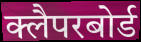
क्लैपरबोर्ड